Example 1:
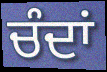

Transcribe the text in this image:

ਚੰਦਾਂ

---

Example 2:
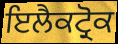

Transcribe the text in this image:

ਇਲੈਕਟ੍ਰੋਕ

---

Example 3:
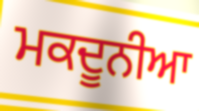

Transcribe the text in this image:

ਮਕਦੂਨੀਆ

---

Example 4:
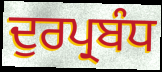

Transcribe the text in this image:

ਦੁਰਪ੍ਰਬੰਧ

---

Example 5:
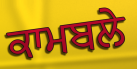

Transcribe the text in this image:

ਕਾਮਬਲੇ